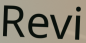
Revi